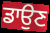
ਡਾਉਣ